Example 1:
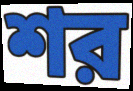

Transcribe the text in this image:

শর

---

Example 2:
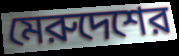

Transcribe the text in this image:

মেরুদেশের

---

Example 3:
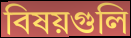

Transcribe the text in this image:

বিষয়গুলি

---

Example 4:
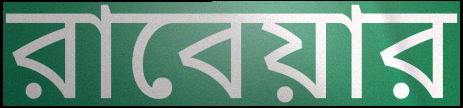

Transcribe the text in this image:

রাবেয়ার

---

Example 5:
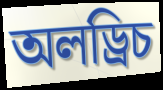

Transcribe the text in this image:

অলড্রিচ